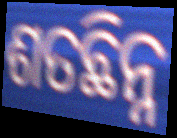
ଶତଛିନ୍ନ